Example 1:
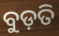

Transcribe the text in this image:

ବୁଡ଼ତି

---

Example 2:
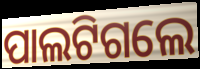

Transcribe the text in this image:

ପାଲଟିଗଲେ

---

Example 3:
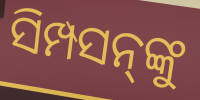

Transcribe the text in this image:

ସିମ୍ପସନ୍‍ଙ୍କୁ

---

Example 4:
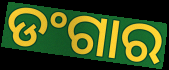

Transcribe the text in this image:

ଡଂଗାର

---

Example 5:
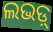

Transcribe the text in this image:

ଲଭଡ଼୍